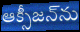
ఆక్సీజన్‌ను